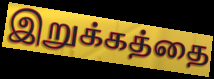
இறுக்கத்தை